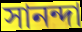
সানন্দা